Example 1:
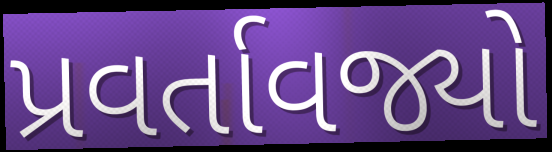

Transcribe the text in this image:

પ્રવર્તાવજ્યો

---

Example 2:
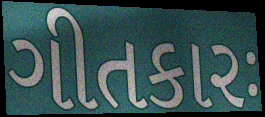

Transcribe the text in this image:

ગીતકારઃ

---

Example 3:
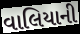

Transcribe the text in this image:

વાલિયાની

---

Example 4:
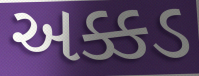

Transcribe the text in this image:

અક્કડ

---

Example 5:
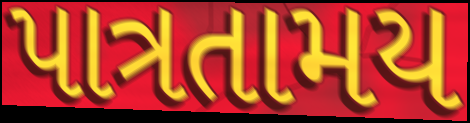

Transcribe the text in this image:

પાત્રતામય